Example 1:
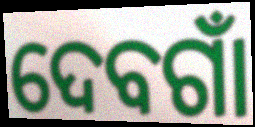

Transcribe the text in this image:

ଦେବଗାଁ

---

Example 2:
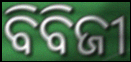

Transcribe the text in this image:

ବିବିଜୀ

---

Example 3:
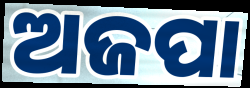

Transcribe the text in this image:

ଅଜପା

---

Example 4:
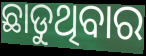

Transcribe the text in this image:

ଛାଡୁଥିବାର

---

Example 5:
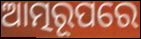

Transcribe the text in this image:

ଆତ୍ମରୂପରେ